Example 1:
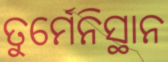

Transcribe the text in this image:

ତୁର୍ମେନିସ୍ଥାନ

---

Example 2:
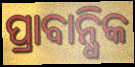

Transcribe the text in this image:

ପ୍ରାବାନ୍ଧିକ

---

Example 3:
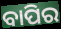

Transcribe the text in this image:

ବାପିର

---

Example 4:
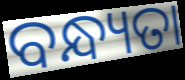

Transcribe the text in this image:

ବନ୍ଧ୍ୟତା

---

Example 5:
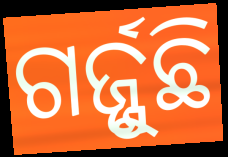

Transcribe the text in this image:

ଗର୍ଜ୍ଜୁଛି